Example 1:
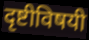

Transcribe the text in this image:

दृष्टीविषयी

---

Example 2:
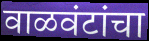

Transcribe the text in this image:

वाळवंटांचा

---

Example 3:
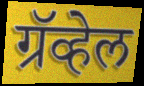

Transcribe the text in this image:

ग्रॅव्हेल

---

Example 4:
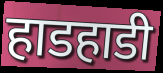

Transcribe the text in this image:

हाडहाडी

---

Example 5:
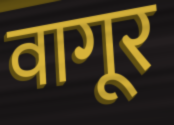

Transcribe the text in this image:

वागूर